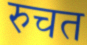
रुचत